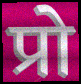
प्रो